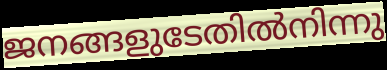
ജനങ്ങളുടേതിൽനിന്നു